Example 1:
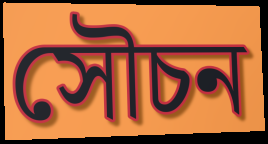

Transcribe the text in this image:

সৌচন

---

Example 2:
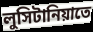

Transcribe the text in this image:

লুসিটানিয়াতে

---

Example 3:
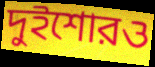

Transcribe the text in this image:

দুইশোরও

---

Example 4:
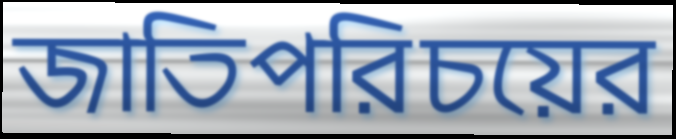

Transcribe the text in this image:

জাতিপরিচয়ের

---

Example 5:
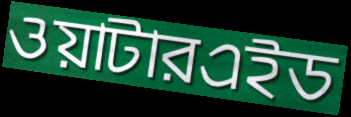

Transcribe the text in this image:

ওয়াটারএইড